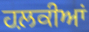
ਹਲ਼ਕੀਆਂ